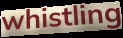
whistling